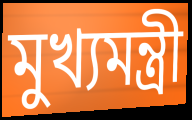
মুখ্যমন্ত্ৰী